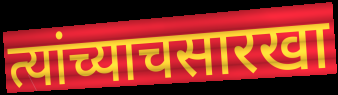
त्यांच्याचसारखा